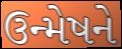
ઉન્મેષને